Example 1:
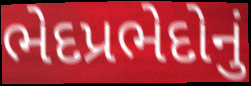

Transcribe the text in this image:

ભેદપ્રભેદોનું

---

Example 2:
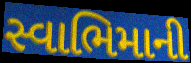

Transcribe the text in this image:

સ્વાભિમાની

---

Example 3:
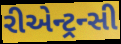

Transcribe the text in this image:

રીએન્ટ્રન્સી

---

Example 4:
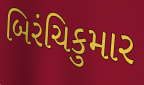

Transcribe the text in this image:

બિરંચિકુમાર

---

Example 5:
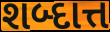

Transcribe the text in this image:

શબ્દાત્ત